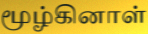
மூழ்கினாள்